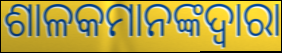
ଶାଳକମାନଙ୍କଦ୍ୱାରା